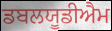
ਡਬਲਯੂਡੀਐਮ